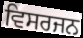
ਵਿਸਰਜਨ